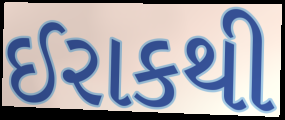
ઈરાકથી